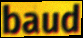
baud